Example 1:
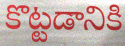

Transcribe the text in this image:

కొట్టడానికి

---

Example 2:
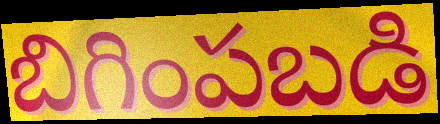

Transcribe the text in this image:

బిగింపబడి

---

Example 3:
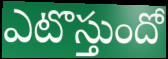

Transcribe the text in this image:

ఎటొస్తుందో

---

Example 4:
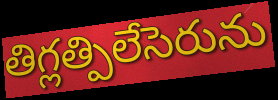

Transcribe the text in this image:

తిగ్లత్పిలేసెరును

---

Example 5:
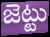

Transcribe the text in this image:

జెట్టు